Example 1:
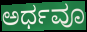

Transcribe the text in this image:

ಅರ್ಧವೂ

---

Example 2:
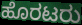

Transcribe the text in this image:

ಹೊರಟರು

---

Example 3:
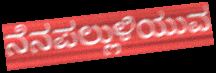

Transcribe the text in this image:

ನೆನಪಲ್ಲುಳಿಯುವ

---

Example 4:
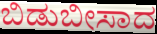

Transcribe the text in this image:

ಬಿಡುಬೀಸಾದ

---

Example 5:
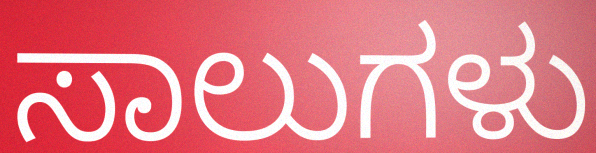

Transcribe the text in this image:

ಸಾಲುಗಳು